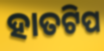
ହାତଟିପ